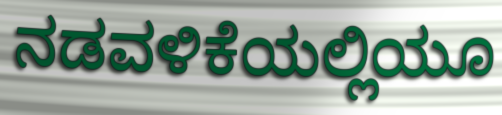
ನಡವಳಿಕೆಯಲ್ಲಿಯೂ